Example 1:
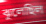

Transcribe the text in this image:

ঝুলেছিল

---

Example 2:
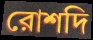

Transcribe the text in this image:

রোশদি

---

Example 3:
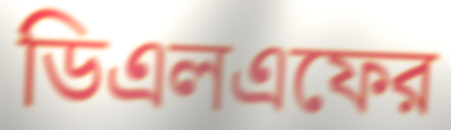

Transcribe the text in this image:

ডিএলএফের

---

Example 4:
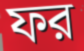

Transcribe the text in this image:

ফর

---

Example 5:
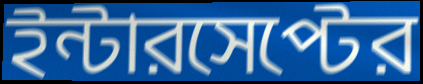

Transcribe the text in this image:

ইন্টারসেপ্টের